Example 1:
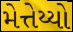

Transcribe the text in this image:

મેત્તેય્યો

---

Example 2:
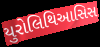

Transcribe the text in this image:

યુરોલિથિઆસિસ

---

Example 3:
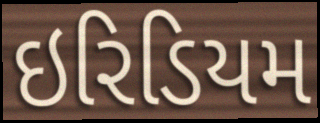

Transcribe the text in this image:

ઇરિડિયમ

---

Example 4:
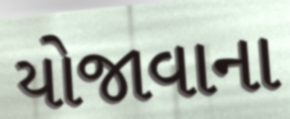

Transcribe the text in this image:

યોજાવાના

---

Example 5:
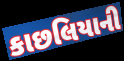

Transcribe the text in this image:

કાછલિયાની